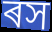
ৰস